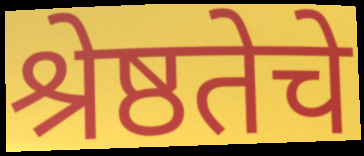
श्रेष्ठतेचे